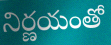
నిర్ణయంతో